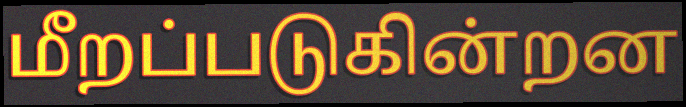
மீறப்படுகின்றன